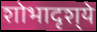
शोभादृश्ये